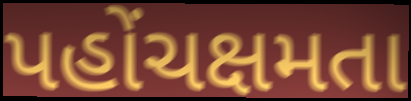
પહોંચક્ષમતા